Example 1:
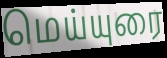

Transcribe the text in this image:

மெய்யுரை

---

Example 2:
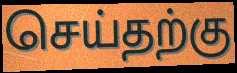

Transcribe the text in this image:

செய்தற்கு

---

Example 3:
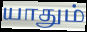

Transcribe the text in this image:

யாதும்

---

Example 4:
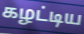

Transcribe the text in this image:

கழட்டிய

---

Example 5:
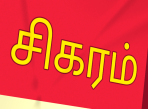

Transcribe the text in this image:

சிகரம்